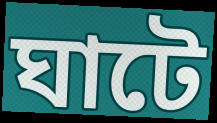
ঘাটে